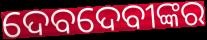
ଦେବଦେବୀଙ୍କର